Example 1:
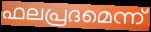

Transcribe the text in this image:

ഫലപ്രദമെന്ന്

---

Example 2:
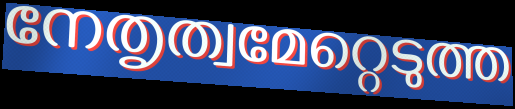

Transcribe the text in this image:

നേതൃത്വമേറ്റെടുത്ത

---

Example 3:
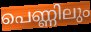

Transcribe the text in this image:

പെണ്ണിലും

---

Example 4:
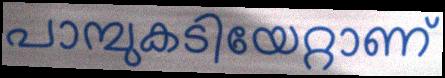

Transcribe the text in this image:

പാമ്പുകടിയേറ്റാണ്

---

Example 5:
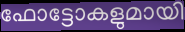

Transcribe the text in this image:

ഫോട്ടോകളുമായി